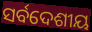
ସର୍ବଦେଶୀୟ